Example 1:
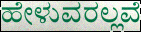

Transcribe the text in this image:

ಹೇಳುವರಲ್ಲವೆ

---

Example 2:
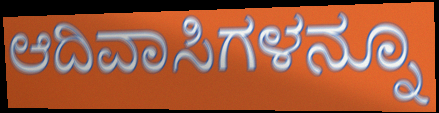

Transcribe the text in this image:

ಆದಿವಾಸಿಗಳನ್ನೂ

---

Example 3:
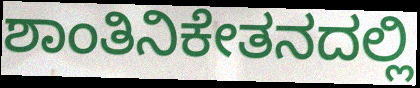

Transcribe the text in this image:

ಶಾಂತಿನಿಕೇತನದಲ್ಲಿ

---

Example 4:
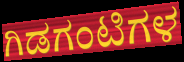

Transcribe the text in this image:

ಗಿಡಗಂಟಿಗಳ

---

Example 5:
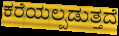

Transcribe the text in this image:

ಕರೆಯಲ್ಪಡುತ್ತದೆ